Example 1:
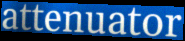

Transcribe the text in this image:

attenuator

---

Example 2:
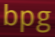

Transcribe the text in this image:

bpg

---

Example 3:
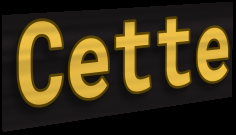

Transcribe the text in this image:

Cette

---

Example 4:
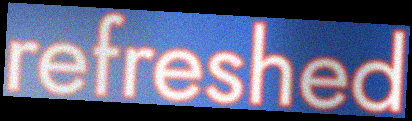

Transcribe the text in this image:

refreshed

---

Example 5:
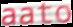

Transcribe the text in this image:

aato